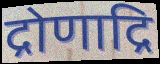
द्रोणाद्रि